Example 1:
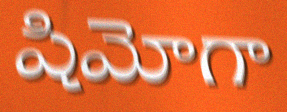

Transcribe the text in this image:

షిమోగా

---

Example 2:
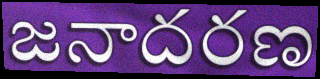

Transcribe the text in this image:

జనాదరణ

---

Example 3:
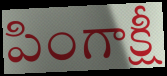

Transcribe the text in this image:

పింగాక్షీ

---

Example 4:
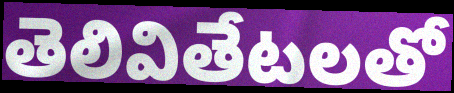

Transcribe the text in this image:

తెలివితేటలతో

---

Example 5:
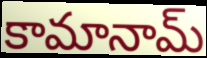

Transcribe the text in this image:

కామానామ్